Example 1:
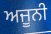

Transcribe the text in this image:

ਅਜੂਨੀ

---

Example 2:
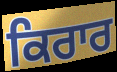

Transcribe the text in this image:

ਕਿਰਾਰ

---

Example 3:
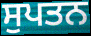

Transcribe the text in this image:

ਸੁਪਤਨ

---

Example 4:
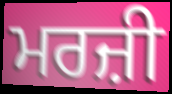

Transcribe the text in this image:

ਮਰਜ਼ੀ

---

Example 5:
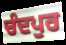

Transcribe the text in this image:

ਚੰਦਪੁਰ